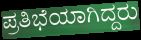
ಪ್ರತಿಭೆಯಾಗಿದ್ದರು